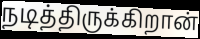
நடித்திருக்கிறான்